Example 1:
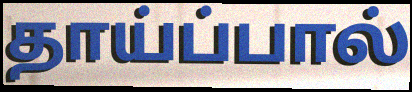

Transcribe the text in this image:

தாய்ப்பால்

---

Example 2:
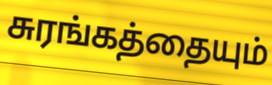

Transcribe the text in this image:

சுரங்கத்தையும்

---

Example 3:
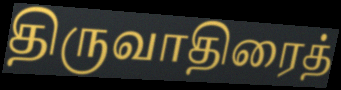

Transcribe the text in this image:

திருவாதிரைத்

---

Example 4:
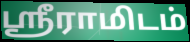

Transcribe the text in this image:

ஸ்ரீராமிடம்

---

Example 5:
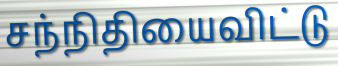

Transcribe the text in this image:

சந்நிதியைவிட்டு